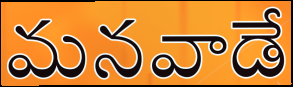
మనవాడే